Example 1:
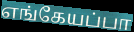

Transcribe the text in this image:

எங்கேயப்பா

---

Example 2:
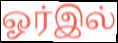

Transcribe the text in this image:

ஓர்இல்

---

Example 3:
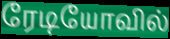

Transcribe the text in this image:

ரேடியோவில்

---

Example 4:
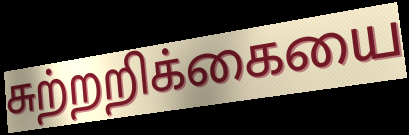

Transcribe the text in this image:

சுற்றறிக்கையை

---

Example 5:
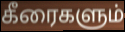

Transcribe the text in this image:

கீரைகளும்